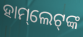
ହାମ୍‌ଲେଟ୍‌ଙ୍କ